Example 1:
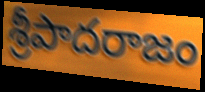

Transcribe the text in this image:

శ్రీపాదరాజం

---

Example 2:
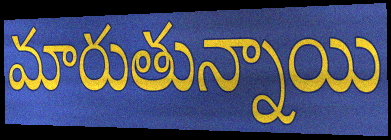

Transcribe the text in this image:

మారుతున్నాయి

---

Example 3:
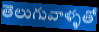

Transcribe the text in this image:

తెలుగువాళ్ళతో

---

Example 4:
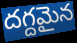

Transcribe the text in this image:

దగ్దమైన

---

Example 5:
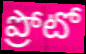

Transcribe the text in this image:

ప్రోటో